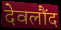
देवलौंद